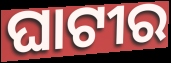
ଘାଟୀର